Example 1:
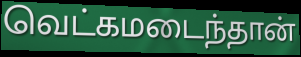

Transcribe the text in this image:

வெட்கமடைந்தான்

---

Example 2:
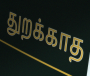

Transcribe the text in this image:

துறக்காத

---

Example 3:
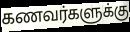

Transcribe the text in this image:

கணவர்களுக்கு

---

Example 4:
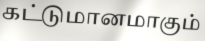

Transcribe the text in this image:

கட்டுமானமாகும்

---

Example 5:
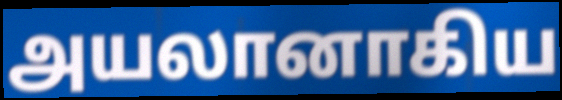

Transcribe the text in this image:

அயலானாகிய